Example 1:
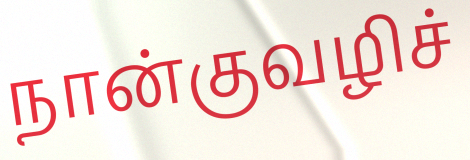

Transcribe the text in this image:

நான்குவழிச்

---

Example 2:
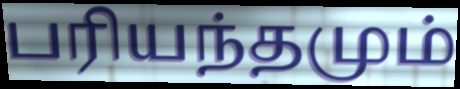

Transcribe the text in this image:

பரியந்தமும்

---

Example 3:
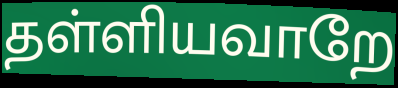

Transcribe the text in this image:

தள்ளியவாறே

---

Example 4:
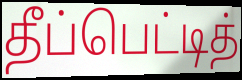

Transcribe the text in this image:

தீப்பெட்டித்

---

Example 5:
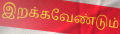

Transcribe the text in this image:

இறக்கவேண்டும்